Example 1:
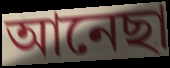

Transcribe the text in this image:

আনেছা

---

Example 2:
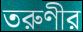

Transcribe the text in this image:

তরুণীর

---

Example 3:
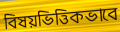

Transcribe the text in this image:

বিষয়ভিত্তিকভাবে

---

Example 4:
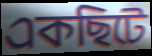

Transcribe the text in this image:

একছিটে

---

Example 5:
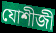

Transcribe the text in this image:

যোশীজী